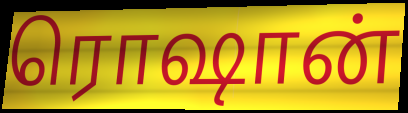
ரொஷான்